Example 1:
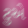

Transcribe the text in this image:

ટુએ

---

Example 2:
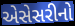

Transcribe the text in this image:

એસેસરીનો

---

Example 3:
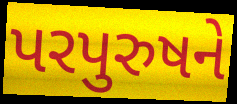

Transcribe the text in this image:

પરપુરુષને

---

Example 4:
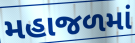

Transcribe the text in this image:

મહાજળમાં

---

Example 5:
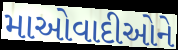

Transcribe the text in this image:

માઓવાદીઓને